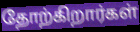
தோற்கிறார்கள்